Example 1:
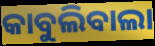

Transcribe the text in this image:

କାବୁଲିବାଲା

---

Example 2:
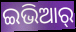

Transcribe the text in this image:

ଇଭିଆର୍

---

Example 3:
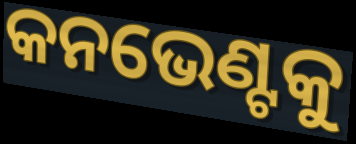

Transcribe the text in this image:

କନଭେଣ୍ଟକୁ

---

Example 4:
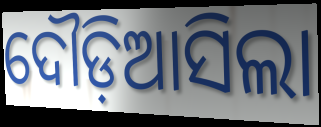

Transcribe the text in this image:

ଦୌଡ଼ିଆସିଲା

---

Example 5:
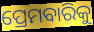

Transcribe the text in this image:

ପ୍ରେମବାରିକୁ